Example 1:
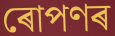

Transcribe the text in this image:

ৰোপণৰ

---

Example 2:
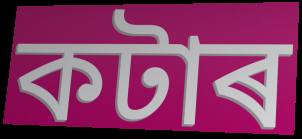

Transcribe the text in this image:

কটাৰ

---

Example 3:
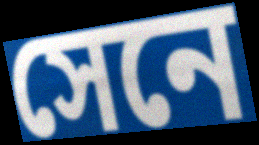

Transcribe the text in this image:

সেনে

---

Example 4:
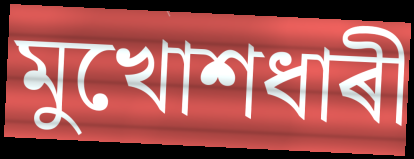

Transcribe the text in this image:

মুখোশধাৰী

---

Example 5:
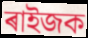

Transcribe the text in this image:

ৰাইজক